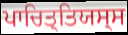
ਪਾਚਿਤ੍ਤਿਯਸ੍ਸ